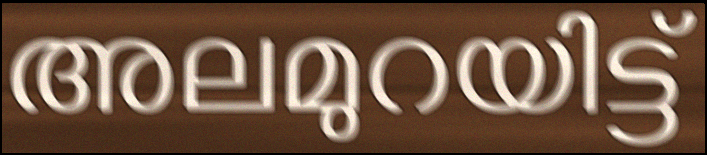
അലമുറയിട്ട്